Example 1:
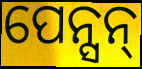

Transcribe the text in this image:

ପେନ୍ସନ୍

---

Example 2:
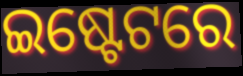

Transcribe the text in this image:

ଇଷ୍ଟେଟରେ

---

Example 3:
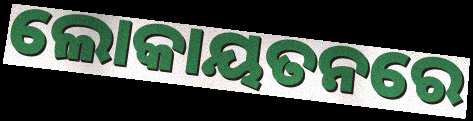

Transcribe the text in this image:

ଲୋକାୟତନରେ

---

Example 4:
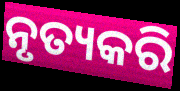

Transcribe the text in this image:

ନୃତ୍ୟକରି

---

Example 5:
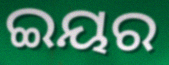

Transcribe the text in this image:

ଇୟର